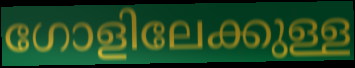
ഗോളിലേക്കുള്ള